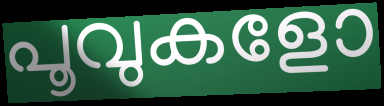
പൂവുകളോ